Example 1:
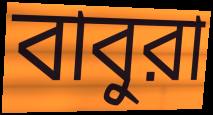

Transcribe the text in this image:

বাবুরা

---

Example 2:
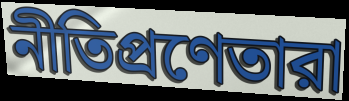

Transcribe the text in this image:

নীতিপ্রণেতারা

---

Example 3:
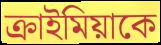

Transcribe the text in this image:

ক্রাইমিয়াকে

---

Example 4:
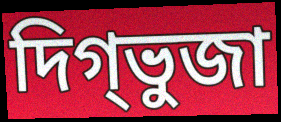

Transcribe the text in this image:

দিগ্ভুজা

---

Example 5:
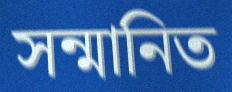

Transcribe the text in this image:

সন্মানিত